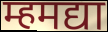
म्हमद्या